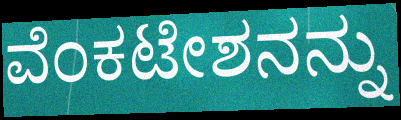
ವೆಂಕಟೇಶನನ್ನು